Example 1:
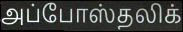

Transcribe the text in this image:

அப்போஸ்தலிக்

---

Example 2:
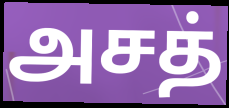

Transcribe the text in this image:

அசத்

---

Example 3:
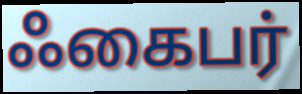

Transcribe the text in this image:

ஃகைபர்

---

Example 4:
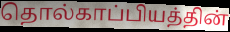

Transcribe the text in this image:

தொல்காப்பியத்தின்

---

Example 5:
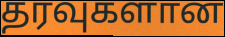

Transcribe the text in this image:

தரவுகளான